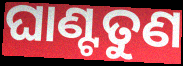
ଘାଣ୍ଟତୁଣ